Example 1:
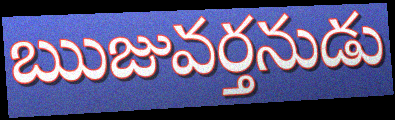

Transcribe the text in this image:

ఋజువర్తనుడు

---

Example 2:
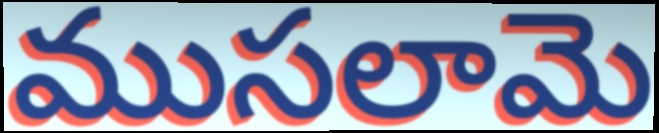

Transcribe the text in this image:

ముసలామె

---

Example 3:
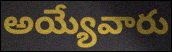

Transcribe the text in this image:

అయ్యేవారు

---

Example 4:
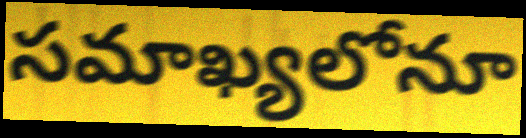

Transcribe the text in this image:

సమాఖ్యలోనూ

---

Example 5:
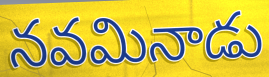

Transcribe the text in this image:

నవమినాడు